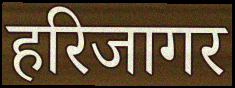
हरिजागर